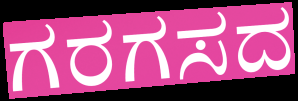
ಗರಗಸದ